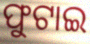
ଫୁଟାଇ